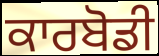
ਕਾਰਬੋਡੀ